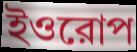
ইওরোপ